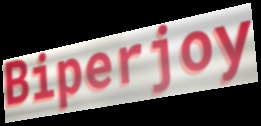
Biperjoy